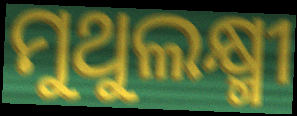
ମୁଥୁଲକ୍ଷ୍ମୀ